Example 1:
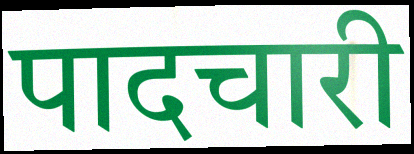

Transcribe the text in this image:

पादचारी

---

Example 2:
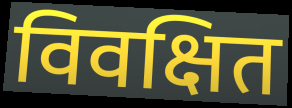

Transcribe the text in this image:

विवक्षित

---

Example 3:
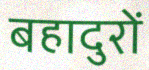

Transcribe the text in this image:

बहादुरों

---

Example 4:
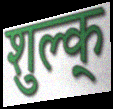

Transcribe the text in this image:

शुल्क्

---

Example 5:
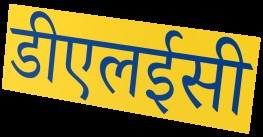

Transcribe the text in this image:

डीएलईसी